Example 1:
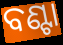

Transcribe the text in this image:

ବଣ୍ଟା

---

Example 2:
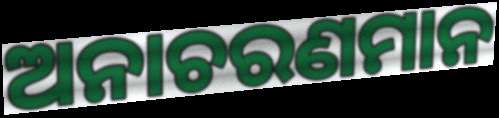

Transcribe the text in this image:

ଅନାଚରଣମାନ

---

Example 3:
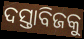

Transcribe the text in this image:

ଦସ୍ତାବିଜକୁ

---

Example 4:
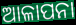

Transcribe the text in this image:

ଆଳାପନା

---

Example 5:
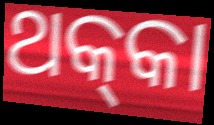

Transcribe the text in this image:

ଥକ୍‍କା